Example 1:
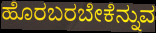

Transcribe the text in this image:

ಹೊರಬರಬೇಕೆನ್ನುವ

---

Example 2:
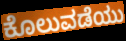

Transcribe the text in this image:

ಕೊಲುವಡೆಯು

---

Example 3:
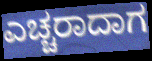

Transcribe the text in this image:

ಎಚ್ಚರಾದಾಗ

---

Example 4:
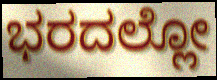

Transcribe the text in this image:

ಭರದಲ್ಲೋ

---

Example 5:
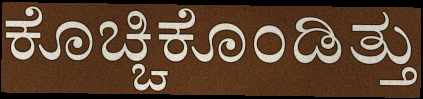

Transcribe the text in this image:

ಕೊಚ್ಚಿಕೊಂಡಿತ್ತು